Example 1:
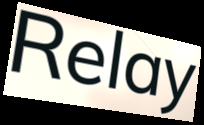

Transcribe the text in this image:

Relay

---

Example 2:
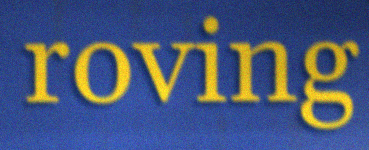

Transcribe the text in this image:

roving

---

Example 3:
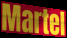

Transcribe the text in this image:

Martel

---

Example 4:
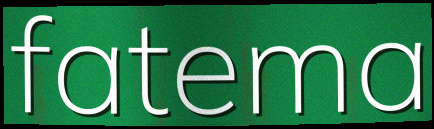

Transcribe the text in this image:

fatema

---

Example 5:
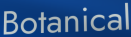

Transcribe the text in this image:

Botanical